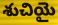
శుచియై